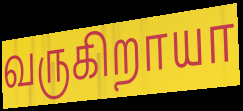
வருகிறாயா